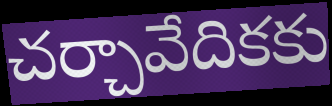
చర్చావేదికకు